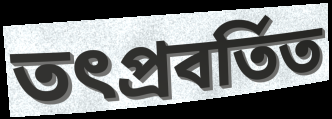
তৎপ্রবর্তিত